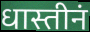
धास्तीनं